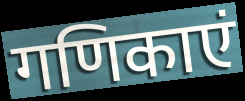
गणिकाएं